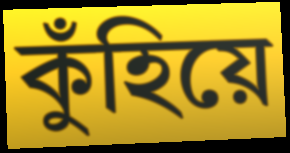
কুঁহিয়ে